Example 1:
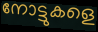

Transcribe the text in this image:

നോട്ടുകളെ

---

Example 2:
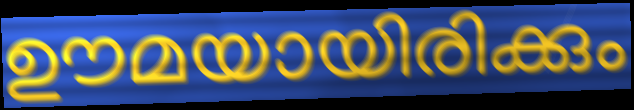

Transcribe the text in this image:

ഊമയായിരിക്കും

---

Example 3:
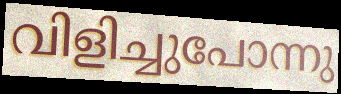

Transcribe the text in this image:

വിളിച്ചുപോന്നു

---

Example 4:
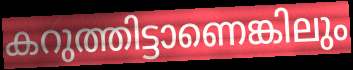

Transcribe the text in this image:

കറുത്തിട്ടാണെങ്കിലും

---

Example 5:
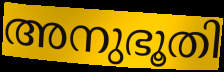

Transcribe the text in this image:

അനുഭൂതി